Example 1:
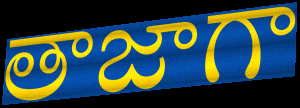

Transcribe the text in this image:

తాజాగా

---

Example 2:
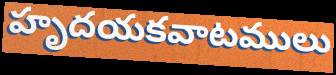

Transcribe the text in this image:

హృదయకవాటములు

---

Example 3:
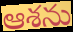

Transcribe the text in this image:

ఆశను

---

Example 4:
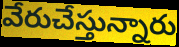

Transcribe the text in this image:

వేరుచేస్తున్నారు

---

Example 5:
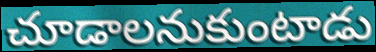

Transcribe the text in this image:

చూడాలనుకుంటాడు